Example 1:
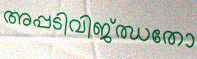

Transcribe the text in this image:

അപ്പടിവിജ്ഝതോ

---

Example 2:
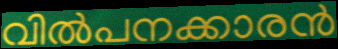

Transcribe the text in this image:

വിൽപനക്കാരൻ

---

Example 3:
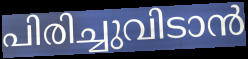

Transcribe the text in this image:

പിരിച്ചുവിടാൻ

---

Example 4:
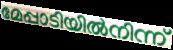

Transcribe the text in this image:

മേപ്പാടിയിൽനിന്ന്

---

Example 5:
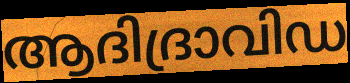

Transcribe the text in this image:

ആദിദ്രാവിഡ